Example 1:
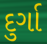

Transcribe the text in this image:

દુર્ગા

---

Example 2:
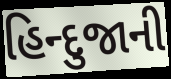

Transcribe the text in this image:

હિન્દુજાની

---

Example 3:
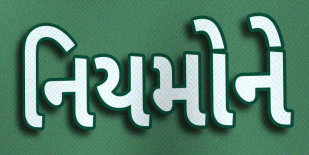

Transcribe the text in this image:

નિયમોને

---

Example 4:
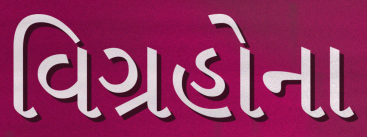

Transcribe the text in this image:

વિગ્રહોના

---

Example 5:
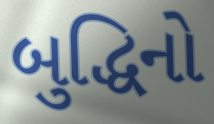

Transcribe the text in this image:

બુદ્ધિનો